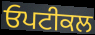
ਓਪਟੀਕਲ